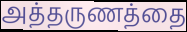
அத்தருணத்தை